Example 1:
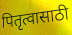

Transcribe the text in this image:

पितृत्वासाठी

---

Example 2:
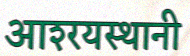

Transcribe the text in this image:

आश्रयस्थानी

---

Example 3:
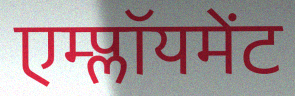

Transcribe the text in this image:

एम्प्लॉयमेंट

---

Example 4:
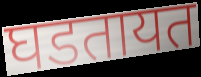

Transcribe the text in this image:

घडतायत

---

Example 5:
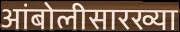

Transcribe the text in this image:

आंबोलीसारख्या